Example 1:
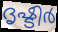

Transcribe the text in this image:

ദൃഷ്ടിർ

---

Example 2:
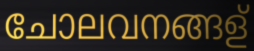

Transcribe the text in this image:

ചോലവനങ്ങള്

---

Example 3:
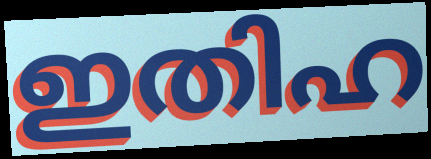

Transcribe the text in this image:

ഇതിഹ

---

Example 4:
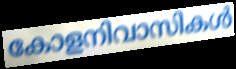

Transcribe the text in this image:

കോളനിവാസികൾ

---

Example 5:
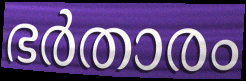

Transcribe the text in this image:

ഭർതാരം